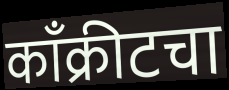
काँक्रीटचा